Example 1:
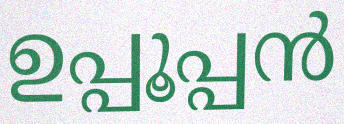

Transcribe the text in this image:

ഉപ്പൂപ്പൻ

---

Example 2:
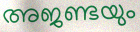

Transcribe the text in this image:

അജണ്ടയും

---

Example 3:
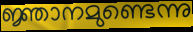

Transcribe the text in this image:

ജ്ഞാനമുണ്ടെന്നു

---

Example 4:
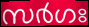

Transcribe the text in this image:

സർഗഃ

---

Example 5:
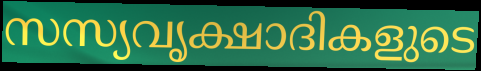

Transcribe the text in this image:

സസ്യവൃക്ഷാദികളുടെ